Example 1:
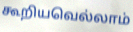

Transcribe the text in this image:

கூறியவெல்லாம்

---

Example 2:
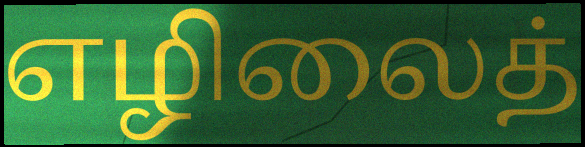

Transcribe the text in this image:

எழிலைத்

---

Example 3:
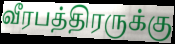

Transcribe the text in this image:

வீரபத்திரருக்கு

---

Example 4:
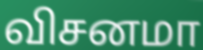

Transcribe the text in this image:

விசனமா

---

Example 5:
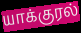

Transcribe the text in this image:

யாக்குரல்